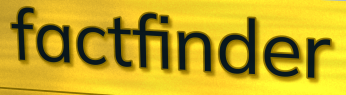
factfinder